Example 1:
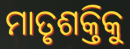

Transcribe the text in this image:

ମାତୃଶକ୍ତିକୁ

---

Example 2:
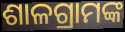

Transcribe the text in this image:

ଶାଳଗ୍ରାମଙ୍କ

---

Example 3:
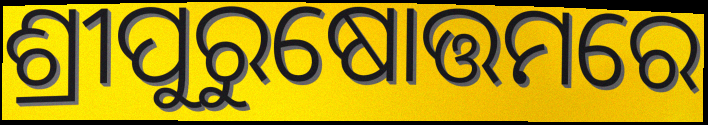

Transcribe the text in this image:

ଶ୍ରୀପୁରୁଷୋତ୍ତମରେ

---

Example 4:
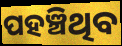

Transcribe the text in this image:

ପହଞ୍ଚିଥିବ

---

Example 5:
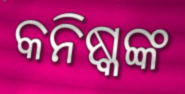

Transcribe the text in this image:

କନିଷ୍କଙ୍କ